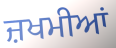
ਜ਼ਖਮੀਆਂ